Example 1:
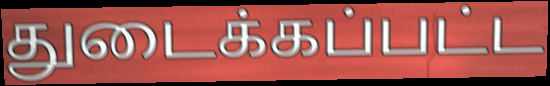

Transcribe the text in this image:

துடைக்கப்பட்ட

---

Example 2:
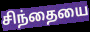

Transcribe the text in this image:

சிந்தையை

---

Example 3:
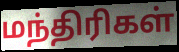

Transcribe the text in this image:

மந்திரிகள்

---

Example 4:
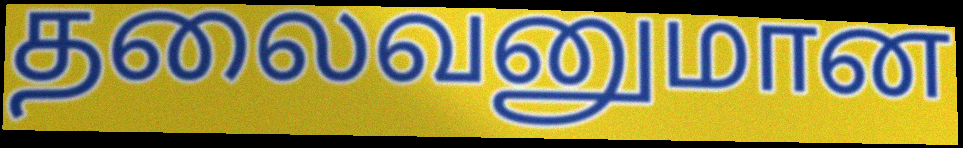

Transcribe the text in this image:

தலைவனுமான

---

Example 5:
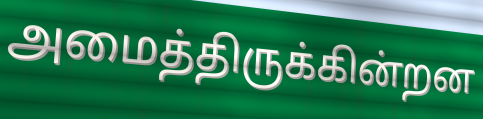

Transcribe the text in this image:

அமைத்திருக்கின்றன